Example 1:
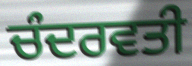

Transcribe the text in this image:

ਚੰਦਰਵਤੀ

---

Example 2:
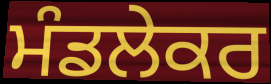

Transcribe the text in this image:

ਮੰਡਲੇਕਰ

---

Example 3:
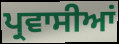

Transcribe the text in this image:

ਪ੍ਰਵਾਸੀਆਂ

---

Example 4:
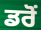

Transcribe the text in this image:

ਡਰੋਂ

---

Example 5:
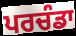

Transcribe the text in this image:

ਪਰਚੰਡਾ